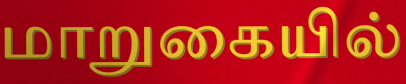
மாறுகையில்